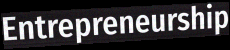
Entrepreneurship